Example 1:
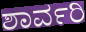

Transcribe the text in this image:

ಶಾರ್ವರಿ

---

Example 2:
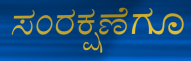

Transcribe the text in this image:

ಸಂರಕ್ಷಣೆಗೂ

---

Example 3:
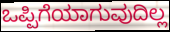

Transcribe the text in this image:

ಒಪ್ಪಿಗೆಯಾಗುವುದಿಲ್ಲ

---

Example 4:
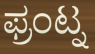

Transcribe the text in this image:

ಫ್ರಂಟ್ನ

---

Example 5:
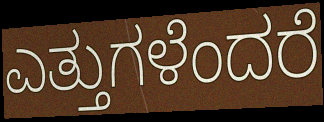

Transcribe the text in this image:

ಎತ್ತುಗಳೆಂದರೆ